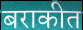
बराकीत